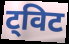
ट्विट